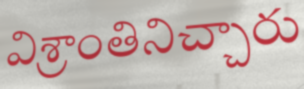
విశ్రాంతినిచ్చారు